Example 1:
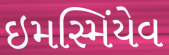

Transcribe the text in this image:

ઇમસ્મિંયેવ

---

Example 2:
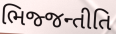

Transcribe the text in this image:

ભિજ્જન્તીતિ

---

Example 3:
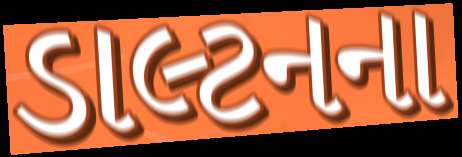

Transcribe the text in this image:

ડાલ્ટનના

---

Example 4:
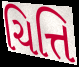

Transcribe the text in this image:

ચિત્તિ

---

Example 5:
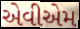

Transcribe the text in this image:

એવીએમ